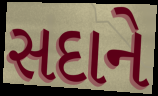
સદાને